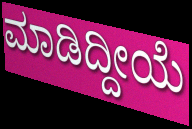
ಮಾಡಿದ್ದೀಯೆ